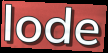
lode